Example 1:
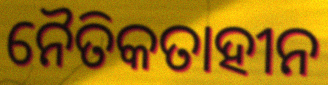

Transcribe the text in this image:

ନୈତିକତାହୀନ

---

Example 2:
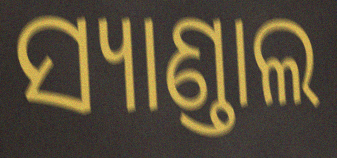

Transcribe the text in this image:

ସ୍ୟାଣ୍ଡାଲ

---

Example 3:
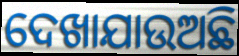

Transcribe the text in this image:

ଦେଖାଯାଉଅଛି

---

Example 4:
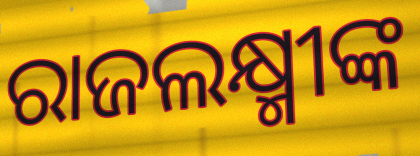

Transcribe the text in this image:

ରାଜଲକ୍ଷ୍ମୀଙ୍କ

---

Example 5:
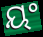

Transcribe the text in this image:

ୟଂ